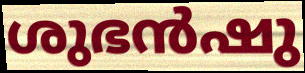
ശുഭൻഷു